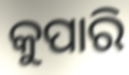
କୁପାରି